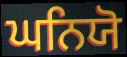
ਘਨਿਯੋ